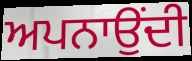
ਅਪਨਾਉਂਦੀ